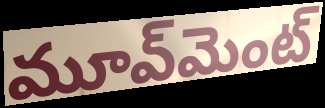
మూవ్‌మెంట్